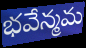
భవేన్మమ